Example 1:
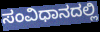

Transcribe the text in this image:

ಸಂವಿಧಾನದಲ್ಲಿ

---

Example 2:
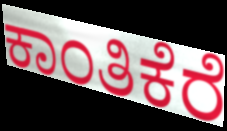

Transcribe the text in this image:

ಕಾಂತಿಕೆರೆ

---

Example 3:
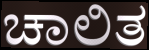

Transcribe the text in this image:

ಚಾಲಿತ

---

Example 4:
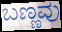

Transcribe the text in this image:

ಬಣ್ಣವು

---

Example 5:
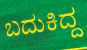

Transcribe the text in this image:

ಬದುಕಿದ್ದ